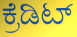
ಕ್ರೆಡಿಟ್